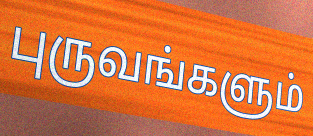
புருவங்களும்